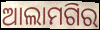
ଆଲାମଗିର